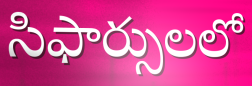
సిఫార్సులలో